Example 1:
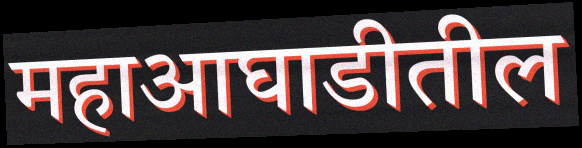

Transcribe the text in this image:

महाआघाडीतील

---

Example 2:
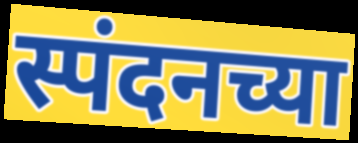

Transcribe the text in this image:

स्पंदनच्या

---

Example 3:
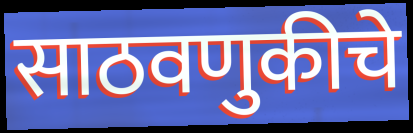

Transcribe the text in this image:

साठवणुकीचे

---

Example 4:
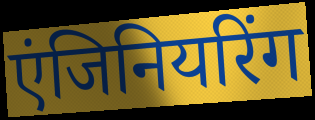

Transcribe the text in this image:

एंजिनियरिंग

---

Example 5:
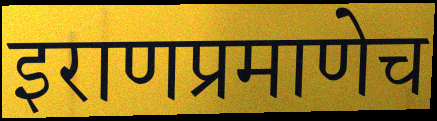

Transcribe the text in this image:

इराणप्रमाणेच